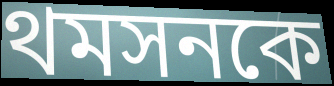
থমসনকে